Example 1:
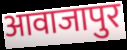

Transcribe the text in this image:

आवाजापुर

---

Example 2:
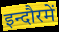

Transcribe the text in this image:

इन्दौरमें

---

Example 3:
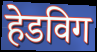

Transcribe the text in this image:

हेडविग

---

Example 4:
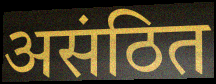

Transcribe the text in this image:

असंठित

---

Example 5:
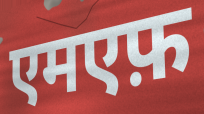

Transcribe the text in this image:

एमएफ़